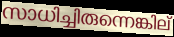
സാധിച്ചിരുന്നെങ്കില്